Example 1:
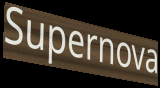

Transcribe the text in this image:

Supernova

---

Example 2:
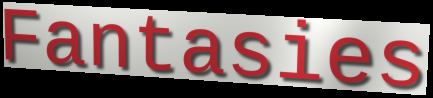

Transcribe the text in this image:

Fantasies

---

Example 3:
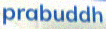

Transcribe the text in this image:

prabuddh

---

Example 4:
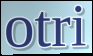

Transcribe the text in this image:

otri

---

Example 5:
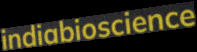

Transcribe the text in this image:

indiabioscience